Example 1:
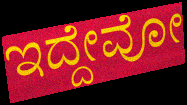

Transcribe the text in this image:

ಇದ್ದೇವೋ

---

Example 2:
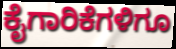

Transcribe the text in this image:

ಕೈಗಾರಿಕೆಗಳಿಗೂ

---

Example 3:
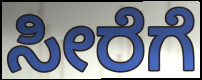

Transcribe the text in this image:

ಸೀರೆಗೆ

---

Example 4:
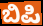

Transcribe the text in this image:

ಬಿಪಿ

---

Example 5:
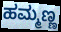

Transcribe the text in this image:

ಹಮ್ಮಣ್ಣ